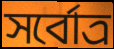
সর্বোত্র